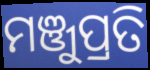
ମଞ୍ଜୁପ୍ରତି